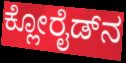
ಕ್ಲೋರೈಡ್‍ನ